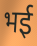
भई